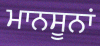
ਮਾਨਸੂਨਾਂ